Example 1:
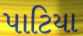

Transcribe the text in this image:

પાટિયા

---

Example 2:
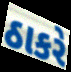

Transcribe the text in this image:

ઠાકરે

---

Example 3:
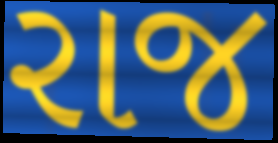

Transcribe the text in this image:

રાજ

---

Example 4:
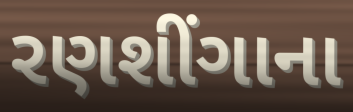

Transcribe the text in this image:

રણશીંગાના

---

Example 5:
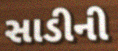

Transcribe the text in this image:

સાડીની